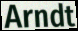
Arndt